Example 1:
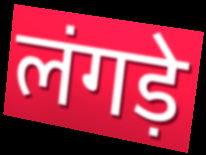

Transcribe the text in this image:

लंगड़े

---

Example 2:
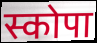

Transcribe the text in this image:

स्कोपा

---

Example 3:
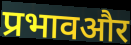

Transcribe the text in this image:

प्रभावऔर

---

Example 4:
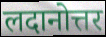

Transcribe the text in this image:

लदानोत्तर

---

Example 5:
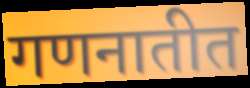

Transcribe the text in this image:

गणनातीत